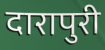
दारापुरी